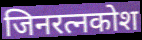
जिनरत्नकोश